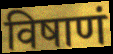
विषाणं